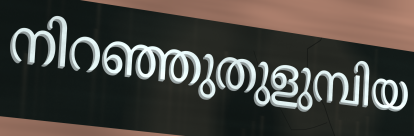
നിറഞ്ഞുതുളുമ്പിയ